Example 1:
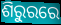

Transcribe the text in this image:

ଶିରୁରରେ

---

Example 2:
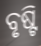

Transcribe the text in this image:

ବୃଷ୍ଟି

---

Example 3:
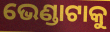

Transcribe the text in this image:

ଭେଣ୍ଡାଟାକୁ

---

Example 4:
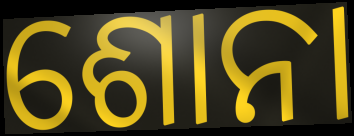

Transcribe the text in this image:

ଶୋନା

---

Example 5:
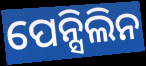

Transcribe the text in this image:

ପେନ୍ସିଲିନ